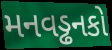
મનવડ્ઢનકો